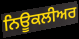
ਨਿਊਕਲੀਅਰ